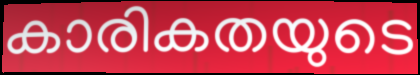
കാരികതയുടെ